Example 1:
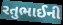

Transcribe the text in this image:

રતુભાઈની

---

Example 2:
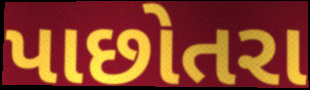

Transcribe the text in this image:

પાછોતરા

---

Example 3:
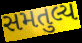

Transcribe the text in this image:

સમતુલ્ય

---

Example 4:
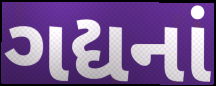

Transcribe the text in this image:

ગદ્યનાં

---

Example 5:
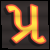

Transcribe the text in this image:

પ્ર